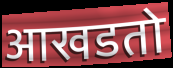
आखडतो